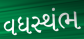
વધસ્થંભ